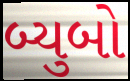
બ્યુબો